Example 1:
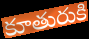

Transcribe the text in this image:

కూతురుకి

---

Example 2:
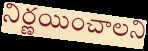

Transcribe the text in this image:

నిర్ణయించాలని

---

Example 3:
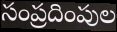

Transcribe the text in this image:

సంప్రదింపుల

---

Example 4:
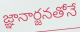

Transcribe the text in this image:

జ్ఞానార్జనతోనే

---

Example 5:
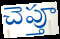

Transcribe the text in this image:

చెప్తూ